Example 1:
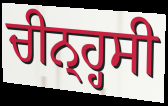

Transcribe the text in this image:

ਚੀਨ੍ਹ੍ਹਸੀ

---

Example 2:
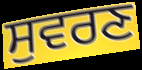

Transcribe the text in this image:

ਸੁਵਰਣ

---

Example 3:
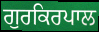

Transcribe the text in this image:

ਗੁਰਕਿਰਪਾਲ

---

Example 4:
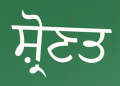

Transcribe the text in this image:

ਸ਼੍ਰੋਣਤ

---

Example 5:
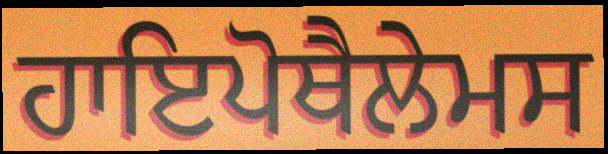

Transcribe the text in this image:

ਹਾਇਪੋਥੈਲੇਮਸ